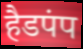
हैडपंप